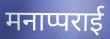
मनाप्पराई